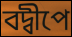
বদ্বীপে